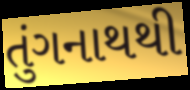
તુંગનાથથી